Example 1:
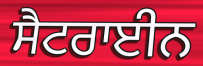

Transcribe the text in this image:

ਸੈਟਰਾਈਨ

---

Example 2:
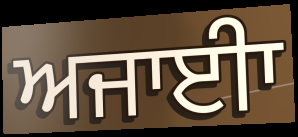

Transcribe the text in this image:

ਅਜਾਈਾ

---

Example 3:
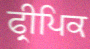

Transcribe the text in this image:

ਫ੍ਰੀਪਿਕ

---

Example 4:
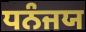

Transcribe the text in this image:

ਧਨੰਜਯ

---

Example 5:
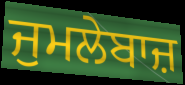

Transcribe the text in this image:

ਜੁਮਲੇਬਾਜ਼